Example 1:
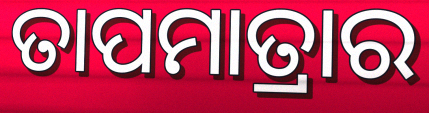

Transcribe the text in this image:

ତାପମାତ୍ରାର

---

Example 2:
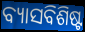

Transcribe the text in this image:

ବ୍ୟାସବିଶିଷ୍ଟ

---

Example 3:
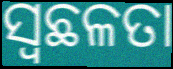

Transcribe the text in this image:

ସ୍ଵଛଳତା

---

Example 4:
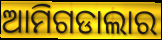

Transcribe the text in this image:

ଆମିଗଡାଲାର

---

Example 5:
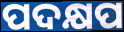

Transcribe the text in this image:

ପଦକ୍ଷପ